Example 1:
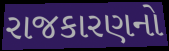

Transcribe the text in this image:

રાજકારણનો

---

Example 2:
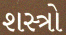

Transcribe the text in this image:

શસ્‍ત્રો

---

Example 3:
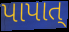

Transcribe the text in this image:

પાપાત્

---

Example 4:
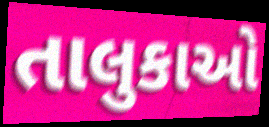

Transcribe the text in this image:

તાલુકાઓ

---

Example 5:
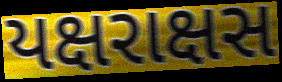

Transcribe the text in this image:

યક્ષરાક્ષસ